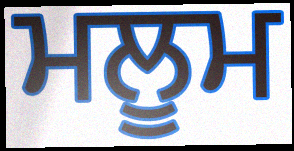
ਮਲੂਮ